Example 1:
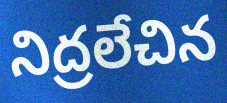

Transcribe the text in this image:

నిద్రలేచిన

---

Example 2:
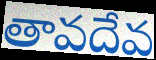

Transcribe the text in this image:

తావదేవ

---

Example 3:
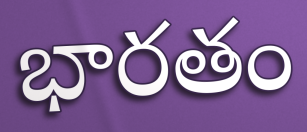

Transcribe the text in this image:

భారతం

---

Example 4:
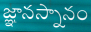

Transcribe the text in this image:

జ్ఞానస్నానం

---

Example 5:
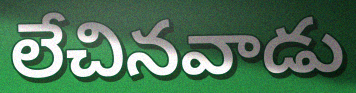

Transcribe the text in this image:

లేచినవాడు